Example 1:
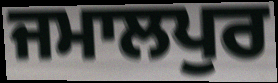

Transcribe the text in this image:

ਜਮਾਲਪੁਰ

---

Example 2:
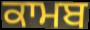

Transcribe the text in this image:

ਕਾਮਬ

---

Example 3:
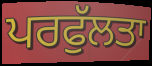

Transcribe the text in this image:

ਪਰਫੁੱਲਤਾ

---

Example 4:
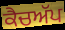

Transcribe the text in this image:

ਕੈਚਅੱਪ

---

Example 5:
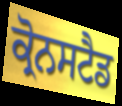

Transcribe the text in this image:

ਕ੍ਰੋਨਸਟੈਡ